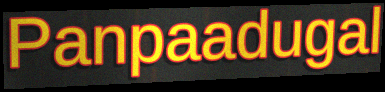
Panpaadugal